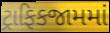
ટ્રાફિકજામમાં